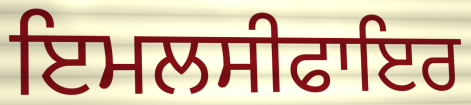
ਇਮਲਸੀਫਾਇਰ